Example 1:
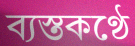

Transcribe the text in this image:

ব্যস্তকণ্ঠে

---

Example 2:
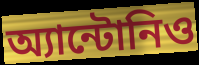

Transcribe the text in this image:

অ্যান্টোনিও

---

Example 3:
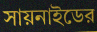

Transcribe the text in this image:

সায়নাইডের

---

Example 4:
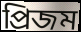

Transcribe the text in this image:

প্রিজম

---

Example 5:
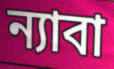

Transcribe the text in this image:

ন্যাবা